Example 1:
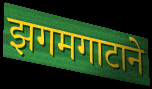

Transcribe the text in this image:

झगमगाटाने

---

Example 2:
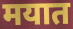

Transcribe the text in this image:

मयात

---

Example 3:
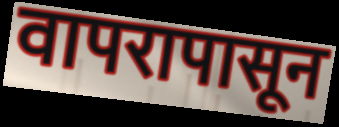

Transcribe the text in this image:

वापरापासून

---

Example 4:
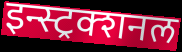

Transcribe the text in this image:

इन्स्ट्रक्शनल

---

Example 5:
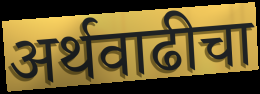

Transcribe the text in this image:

अर्थवाढीचा